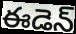
ఈడెన్